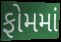
ફોમમાં